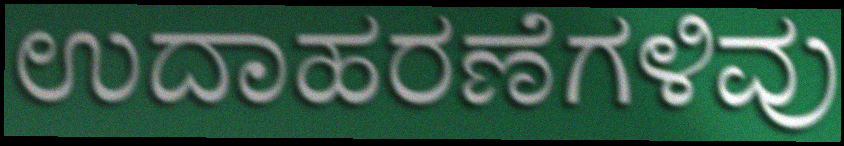
ಉದಾಹರಣೆಗಳಿವು